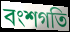
বংশগতি